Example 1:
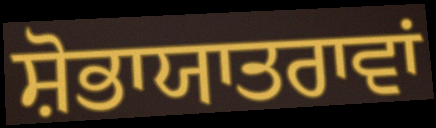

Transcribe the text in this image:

ਸ਼ੋਭਾਯਾਤਰਾਵਾਂ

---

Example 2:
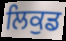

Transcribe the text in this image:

ਲਿਕੁਡ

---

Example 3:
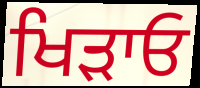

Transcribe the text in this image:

ਖਿੜਾਓ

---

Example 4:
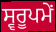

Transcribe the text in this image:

ਸ੍ਵਰੂਪਮੇਂ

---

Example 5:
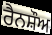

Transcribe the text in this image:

ਰੈਨਸ਼ੌਅ